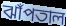
ঝাঁপতাল